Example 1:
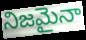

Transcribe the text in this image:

నిజమైనా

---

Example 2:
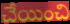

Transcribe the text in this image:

చేయించి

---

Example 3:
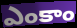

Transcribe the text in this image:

ఎంకాం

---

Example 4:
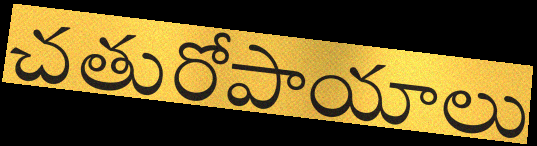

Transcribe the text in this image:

చతురోపాయాలు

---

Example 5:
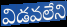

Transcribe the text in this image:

విడవలేని